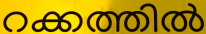
റക്കത്തിൽ